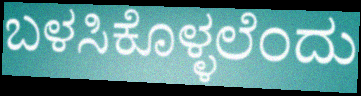
ಬಳಸಿಕೊಳ್ಳಲೆಂದು